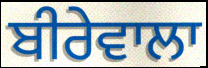
ਬੀਰੇਵਾਲਾ